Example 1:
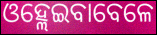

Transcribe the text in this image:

ଓହ୍ଲେଇବାବେଳେ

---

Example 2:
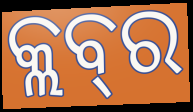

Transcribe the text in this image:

କ୍ଲବ୍‌ର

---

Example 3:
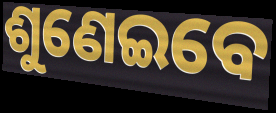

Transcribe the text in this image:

ଶୁଣେଇବେ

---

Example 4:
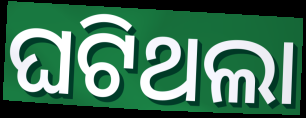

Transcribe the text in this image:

ଘଟିଥଲା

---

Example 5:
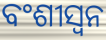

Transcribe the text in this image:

ବଂଶୀସ୍ୱନ